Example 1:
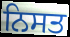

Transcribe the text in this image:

ਨਿਸਤ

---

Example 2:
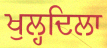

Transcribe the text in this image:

ਖੁਲ੍ਹਦਿਲਾ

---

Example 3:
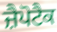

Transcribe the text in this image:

ਜ਼ੈਪੋਟੈਕ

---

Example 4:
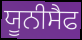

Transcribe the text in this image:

ਯੂਨੀਸੈਫ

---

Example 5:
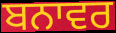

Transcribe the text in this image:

ਬਨਾਵਰ